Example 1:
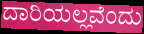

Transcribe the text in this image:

ದಾರಿಯಲ್ಲವೆಂದು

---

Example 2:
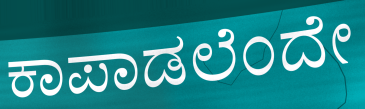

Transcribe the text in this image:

ಕಾಪಾಡಲೆಂದೇ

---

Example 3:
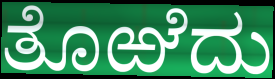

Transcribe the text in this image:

ತೊಱೆದು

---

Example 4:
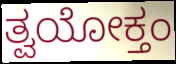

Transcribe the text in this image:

ತ್ವಯೋಕ್ತಂ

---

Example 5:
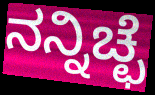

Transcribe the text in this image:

ನನ್ನಿಚ್ಛೆ